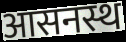
आसनस्थ